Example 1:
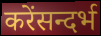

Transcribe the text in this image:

करेंसन्दर्भ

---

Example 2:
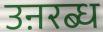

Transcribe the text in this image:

उऩरब्ध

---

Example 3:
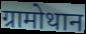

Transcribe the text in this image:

ग्रामोथान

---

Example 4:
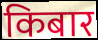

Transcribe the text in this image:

किबार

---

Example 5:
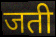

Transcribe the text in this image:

जती